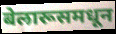
बेलारूसमधून